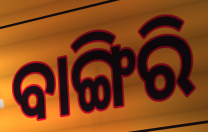
ବାଙ୍ଗିରି